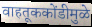
वाहतूककोंडीमुळे